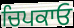
ਚਿਪਕਾਓ